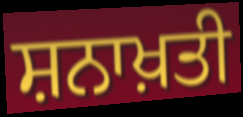
ਸ਼ਨਾਖ਼ਤੀ